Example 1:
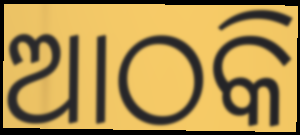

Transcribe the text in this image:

ଆଠକି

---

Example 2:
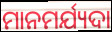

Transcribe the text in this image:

ମାନମର୍ଯ୍ୟଦା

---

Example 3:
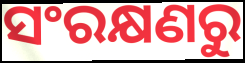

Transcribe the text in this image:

ସଂରକ୍ଷଣରୁ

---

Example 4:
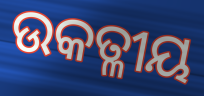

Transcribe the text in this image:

ଉକତ୍ଳୀୟ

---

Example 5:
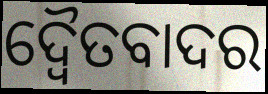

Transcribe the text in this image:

ଦ୍ୱୈତବାଦର